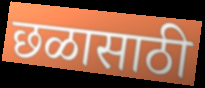
छळासाठी